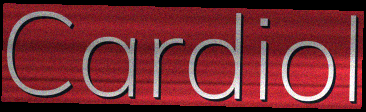
Cardiol